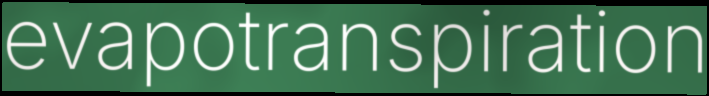
evapotranspiration